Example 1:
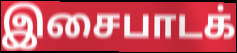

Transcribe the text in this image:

இசைபாடக்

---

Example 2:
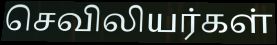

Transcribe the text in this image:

செவிலியர்கள்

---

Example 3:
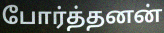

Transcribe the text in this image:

போர்த்தனன்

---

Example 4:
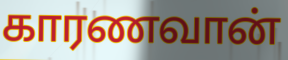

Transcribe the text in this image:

காரணவான்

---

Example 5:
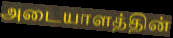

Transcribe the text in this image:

அடையாளத்தின்